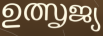
ഉത്സൃജ്യ